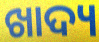
ଖାଦ୍ୟ